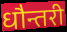
धौन्तरी